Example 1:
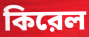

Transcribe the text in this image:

কিরেল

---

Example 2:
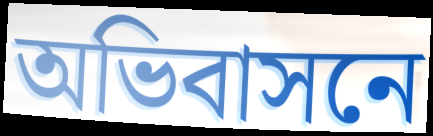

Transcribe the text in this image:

অভিবাসনে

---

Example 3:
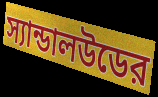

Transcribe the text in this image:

স্যান্ডালউডের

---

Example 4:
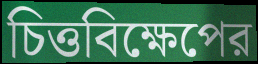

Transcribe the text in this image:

চিত্তবিক্ষেপের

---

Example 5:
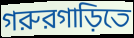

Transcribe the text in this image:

গরুরগাড়িতে